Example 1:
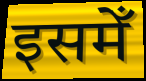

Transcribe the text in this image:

इसमेँ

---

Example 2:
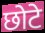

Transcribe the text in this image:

छोटे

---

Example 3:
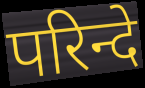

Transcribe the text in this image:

परिन्दे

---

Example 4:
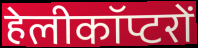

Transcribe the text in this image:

हेलीकॉप्‍टरों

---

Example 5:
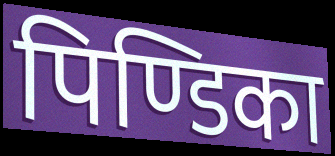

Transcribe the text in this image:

पिण्डिका